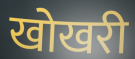
खोखरी